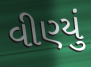
વીણ્યું